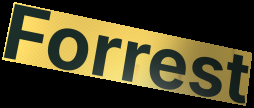
Forrest